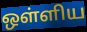
ஒள்ளிய